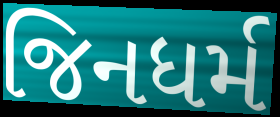
જિનધર્મ